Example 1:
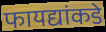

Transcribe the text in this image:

फायद्यांकडे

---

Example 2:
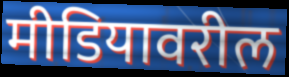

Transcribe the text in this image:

मीडियावरील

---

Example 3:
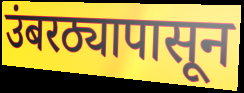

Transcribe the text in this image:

उंबरठ्यापासून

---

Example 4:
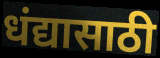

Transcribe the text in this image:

धंद्यासाठी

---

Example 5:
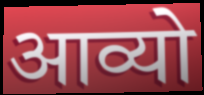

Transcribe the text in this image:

आव्यो